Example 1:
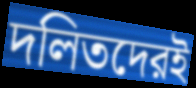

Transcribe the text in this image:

দলিতদেরই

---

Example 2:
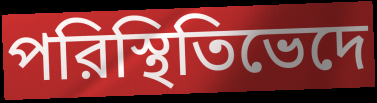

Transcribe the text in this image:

পরিস্থিতিভেদে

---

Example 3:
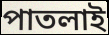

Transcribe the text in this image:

পাতলাই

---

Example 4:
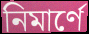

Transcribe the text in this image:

নিমার্ণে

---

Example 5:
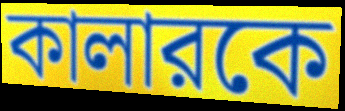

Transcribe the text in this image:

কালারকে